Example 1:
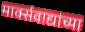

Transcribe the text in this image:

मार्क्सवाद्यांच्या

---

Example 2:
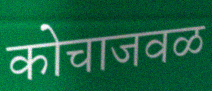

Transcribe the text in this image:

कोचाजवळ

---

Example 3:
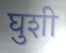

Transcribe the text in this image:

घुशी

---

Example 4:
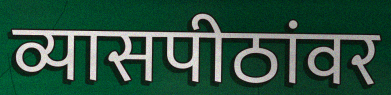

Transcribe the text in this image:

व्यासपीठांवर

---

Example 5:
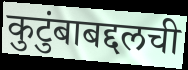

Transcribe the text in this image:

कुटुंबाबद्दलची